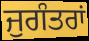
ਜੁਗੰਤਰਾਂ